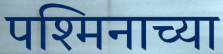
पश्मिनाच्या